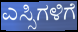
ಎಸ್ಸಿಗಳಿಗೆ